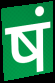
षं